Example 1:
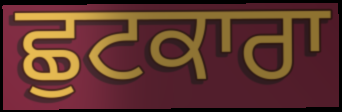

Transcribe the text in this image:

ਛੁਟਕਾਰਾ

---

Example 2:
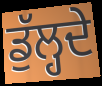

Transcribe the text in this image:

ਡੁੱਲ੍ਹਦੇ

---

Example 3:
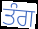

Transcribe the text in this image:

ਤੰਗ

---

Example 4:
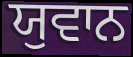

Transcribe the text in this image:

ਯੁਵਾਨ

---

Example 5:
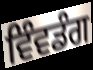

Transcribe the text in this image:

ਵਿੰਵਡੰਗ